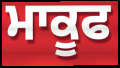
ਮਾਕੂਫ